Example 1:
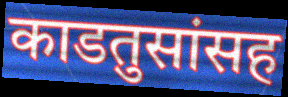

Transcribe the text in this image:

काडतुसांसह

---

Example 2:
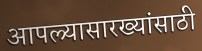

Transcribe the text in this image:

आपल्यासारख्यांसाठी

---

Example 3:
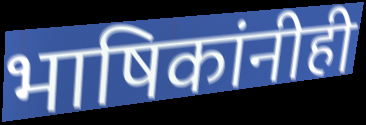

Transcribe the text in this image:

भाषिकांनीही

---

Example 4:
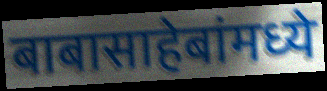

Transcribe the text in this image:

बाबासाहेबांमध्ये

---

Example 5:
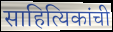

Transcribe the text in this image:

साहित्यिकांची